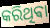
କରିଥିଵା